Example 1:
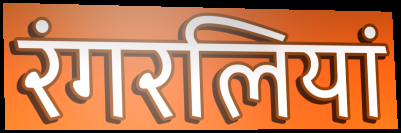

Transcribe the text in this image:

रंगरलियां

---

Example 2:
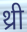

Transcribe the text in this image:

थ्री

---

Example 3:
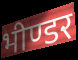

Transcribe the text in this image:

भीण्डर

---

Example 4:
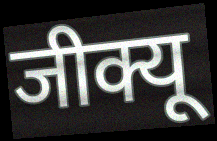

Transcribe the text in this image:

जीक्यू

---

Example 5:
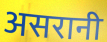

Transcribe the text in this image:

असरानी